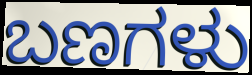
ಬಣಗಳು